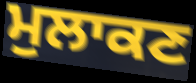
ਮੁਲਾਕਣ